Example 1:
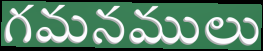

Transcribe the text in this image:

గమనములు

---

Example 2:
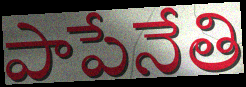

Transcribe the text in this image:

పాపేనేతి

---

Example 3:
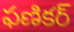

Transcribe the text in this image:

ఫణికర్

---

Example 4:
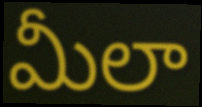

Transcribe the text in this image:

మీలా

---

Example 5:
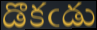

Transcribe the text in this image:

డొకఁడు